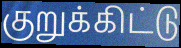
குறுக்கிட்டு